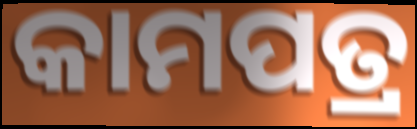
କାମପତ୍ର